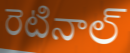
రెటినాల్